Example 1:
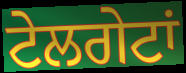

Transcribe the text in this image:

ਟੇਲਗੇਟਾਂ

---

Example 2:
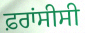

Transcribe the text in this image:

ਫ਼ਰਾਂਸੀਸੀ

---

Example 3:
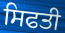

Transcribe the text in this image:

ਸਿਫਤੀ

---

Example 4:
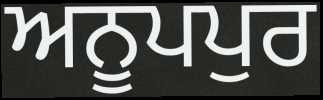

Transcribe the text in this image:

ਅਨੂਪਪੁਰ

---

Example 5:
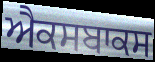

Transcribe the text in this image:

ਐਕਸਬਾਕਸ